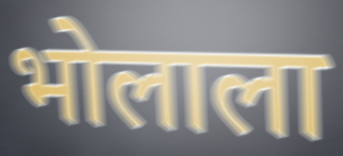
भोलाला